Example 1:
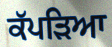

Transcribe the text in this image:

ਕੱਪੜਿਆ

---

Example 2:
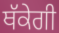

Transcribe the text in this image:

ਥੱਕੇਗੀ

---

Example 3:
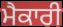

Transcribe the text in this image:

ਮੈਕਾਰੀ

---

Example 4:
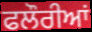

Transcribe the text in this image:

ਫਲੌਰੀਆਂ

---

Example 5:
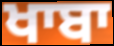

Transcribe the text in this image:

ਖਾਬਾ